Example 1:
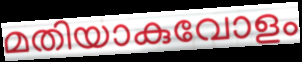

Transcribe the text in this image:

മതിയാകുവോളം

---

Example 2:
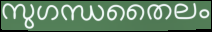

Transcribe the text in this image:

സുഗന്ധതൈലം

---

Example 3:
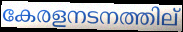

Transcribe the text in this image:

കേരളനടനത്തില്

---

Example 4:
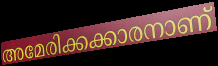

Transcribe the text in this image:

അമേരിക്കക്കാരനാണ്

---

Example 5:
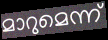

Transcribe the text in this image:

മാറുമെന്ന്